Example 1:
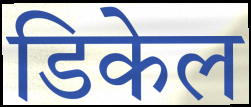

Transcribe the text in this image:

डिकेल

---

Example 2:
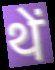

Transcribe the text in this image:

थें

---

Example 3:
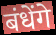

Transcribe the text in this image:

बंधेंगे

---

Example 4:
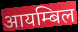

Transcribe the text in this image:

आयम्बिल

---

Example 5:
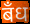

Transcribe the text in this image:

बँध